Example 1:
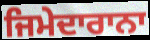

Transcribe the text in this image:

ਜਿਮੇਦਾਰਾਨਾ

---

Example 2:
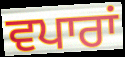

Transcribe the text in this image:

ਵਪਾਰਾਂ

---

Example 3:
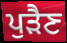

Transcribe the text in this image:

ਪੁੜੈਣ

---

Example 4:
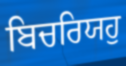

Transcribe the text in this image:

ਬਿਚਰਿਯਹੁ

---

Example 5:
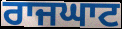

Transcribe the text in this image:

ਰਾਜਘਾਟ